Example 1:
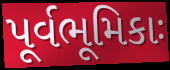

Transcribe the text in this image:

પૂર્વભૂમિકાઃ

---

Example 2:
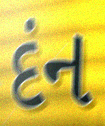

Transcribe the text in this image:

દંન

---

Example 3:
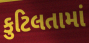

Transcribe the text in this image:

કુટિલતામાં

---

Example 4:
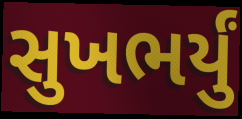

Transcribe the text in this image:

સુખભર્યું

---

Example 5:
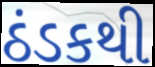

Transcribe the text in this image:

ઠંડકથી